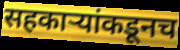
सहकार्‍यांकडूनच